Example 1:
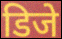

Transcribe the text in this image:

डिजे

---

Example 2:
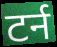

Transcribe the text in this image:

टर्न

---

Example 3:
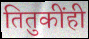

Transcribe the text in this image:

तितुकींही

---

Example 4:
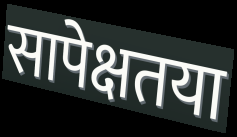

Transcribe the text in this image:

सापेक्षतया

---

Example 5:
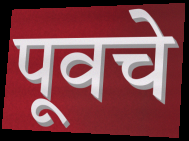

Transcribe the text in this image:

पूवचे